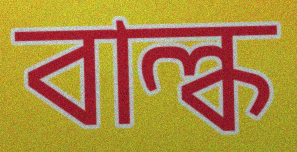
বাল্ক